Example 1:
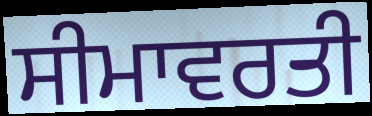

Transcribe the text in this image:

ਸੀਮਾਵਰਤੀ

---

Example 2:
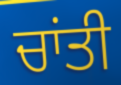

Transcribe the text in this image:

ਚਾਂਤੀ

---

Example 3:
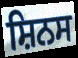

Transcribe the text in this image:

ਸ਼ਿਨਸ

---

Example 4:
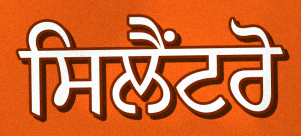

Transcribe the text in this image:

ਸਿਲੈਂਟਰੋ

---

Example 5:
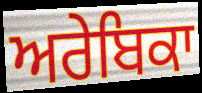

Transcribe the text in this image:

ਅਰੇਬਿਕਾ